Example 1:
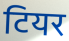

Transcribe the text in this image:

टियर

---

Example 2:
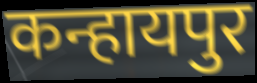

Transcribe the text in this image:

कन्हायपुर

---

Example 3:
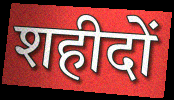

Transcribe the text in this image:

शहीदों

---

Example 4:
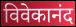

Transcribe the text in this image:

विवेकानंद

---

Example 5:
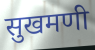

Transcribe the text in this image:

सुखमणी